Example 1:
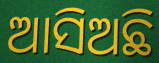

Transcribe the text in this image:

ଆସିଅଛି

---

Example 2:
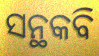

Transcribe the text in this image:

ସନ୍ଥକବି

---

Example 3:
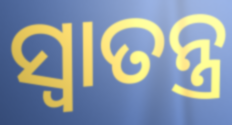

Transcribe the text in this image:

ସ୍ୱାତନ୍ତ୍ର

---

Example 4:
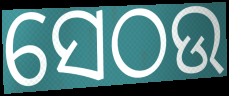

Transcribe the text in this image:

ସେଠଉ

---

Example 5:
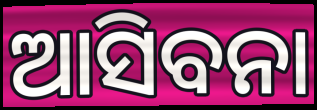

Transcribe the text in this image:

ଆସିବନା